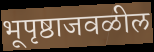
भूपृष्ठाजवळील